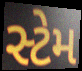
સ્ટેમ